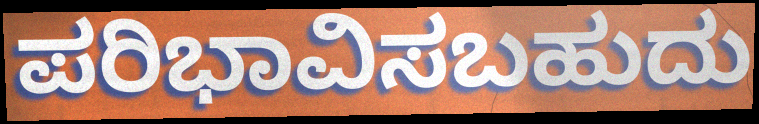
ಪರಿಭಾವಿಸಬಹುದು